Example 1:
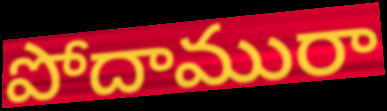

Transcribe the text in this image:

పోదామురా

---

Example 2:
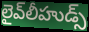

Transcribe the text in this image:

లైవ్‌లీహుడ్స్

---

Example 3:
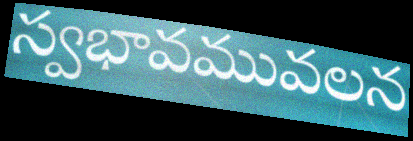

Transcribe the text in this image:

స్వభావమువలన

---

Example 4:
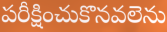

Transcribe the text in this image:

పరీక్షించుకొనవలెను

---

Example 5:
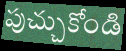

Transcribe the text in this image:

పుచ్చుకోండి